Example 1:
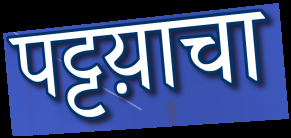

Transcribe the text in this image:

पट्टय़ाचा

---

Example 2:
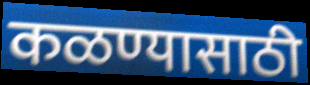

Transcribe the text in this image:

कळण्यासाठी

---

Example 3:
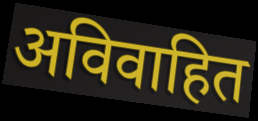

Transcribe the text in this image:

अविवाहित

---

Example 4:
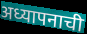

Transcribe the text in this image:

अध्यापनाची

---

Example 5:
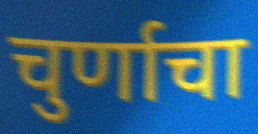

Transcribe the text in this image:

चुर्णाचा